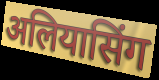
अलियासिंग